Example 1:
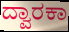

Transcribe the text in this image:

ದ್ವಾರಕಾ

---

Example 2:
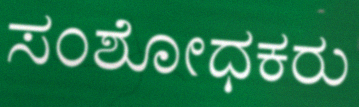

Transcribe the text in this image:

ಸಂಶೋಧಕರು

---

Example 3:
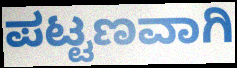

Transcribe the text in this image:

ಪಟ್ಟಣವಾಗಿ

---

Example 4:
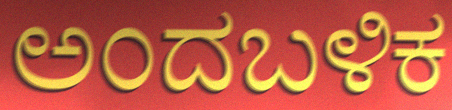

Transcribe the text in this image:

ಅಂದಬಳಿಕ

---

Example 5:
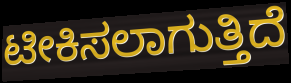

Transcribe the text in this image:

ಟೀಕಿಸಲಾಗುತ್ತಿದೆ